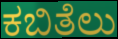
ಕಬಿತೆಲು